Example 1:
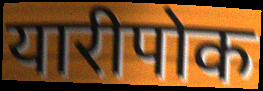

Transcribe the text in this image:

यारीपोक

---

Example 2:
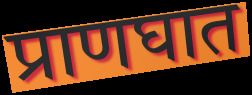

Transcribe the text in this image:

प्राणघात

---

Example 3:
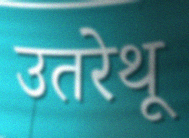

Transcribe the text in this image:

उतरेथू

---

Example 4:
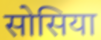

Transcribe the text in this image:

सोसिया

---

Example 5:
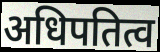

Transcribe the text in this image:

अधिपतित्व